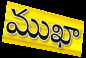
ముఖా